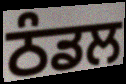
ਠੰਡਲ